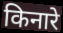
किनारे